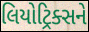
લિયોટ્રિક્સને